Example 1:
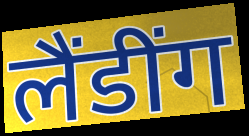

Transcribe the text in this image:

लैंडींग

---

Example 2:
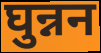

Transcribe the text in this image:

घुन्नन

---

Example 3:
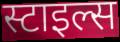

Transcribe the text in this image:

स्टाइल्स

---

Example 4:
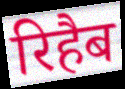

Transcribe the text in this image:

रिहैब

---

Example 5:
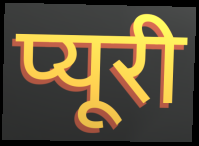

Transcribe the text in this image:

प्यूरी